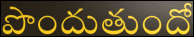
పొందుతుందో